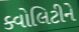
ક્વોલિટીને